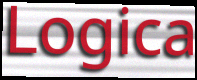
Logica